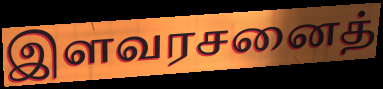
இளவரசனைத்